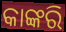
କାଙ୍କରି